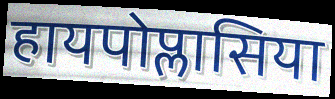
हायपोप्लासिया